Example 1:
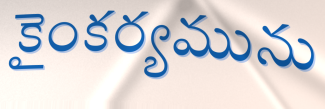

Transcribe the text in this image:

కైంకర్యమును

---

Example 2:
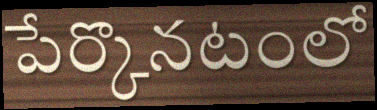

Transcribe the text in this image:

పేర్కొనటంలో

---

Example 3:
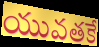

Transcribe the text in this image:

యువతకే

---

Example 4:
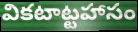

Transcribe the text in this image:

వికటాట్టహాసం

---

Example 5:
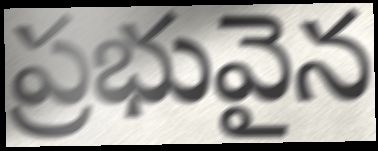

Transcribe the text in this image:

ప్రభువైన